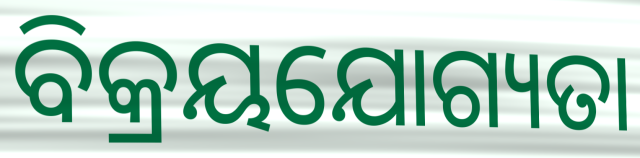
ବିକ୍ରୟଯୋଗ୍ୟତା